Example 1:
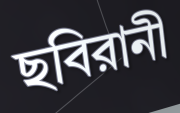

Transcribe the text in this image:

ছবিরানী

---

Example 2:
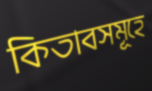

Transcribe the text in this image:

কিতাবসমূহে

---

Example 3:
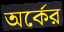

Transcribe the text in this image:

অর্কের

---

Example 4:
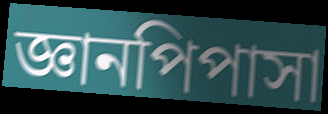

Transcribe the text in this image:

জ্ঞানপিপাসা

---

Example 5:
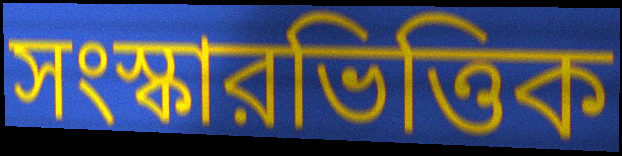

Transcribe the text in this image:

সংস্কারভিত্তিক